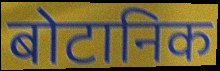
बोटानिक